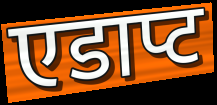
एडाप्ट